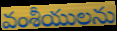
వంశీయులను